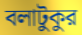
বলাটুকুর